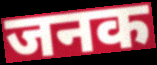
जनक